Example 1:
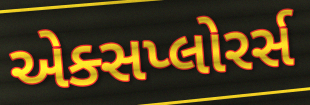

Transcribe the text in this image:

એક્સપ્લોરર્સ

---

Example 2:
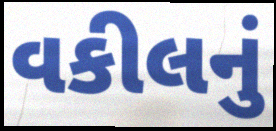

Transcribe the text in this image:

વકીલનું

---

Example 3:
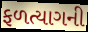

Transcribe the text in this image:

ફળત્યાગની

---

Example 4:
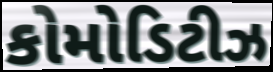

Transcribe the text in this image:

કોમોડિટીઝ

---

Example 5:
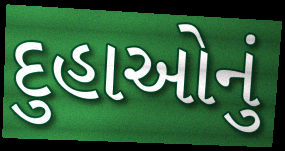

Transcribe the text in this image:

દુહાઓનું